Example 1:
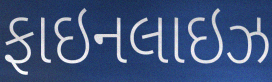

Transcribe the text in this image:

ફાઇનલાઇઝ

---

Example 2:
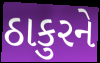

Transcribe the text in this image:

ઠાકુરને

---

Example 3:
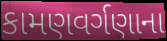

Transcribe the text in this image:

કામણવર્ગણાના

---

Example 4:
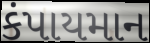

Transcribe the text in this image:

કંપાયમાન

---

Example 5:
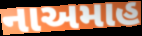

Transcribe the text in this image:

નાઅમાહ